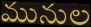
మునుల